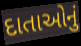
દાતાઓનું